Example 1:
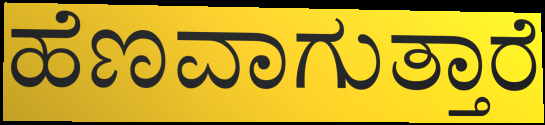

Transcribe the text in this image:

ಹೆಣವಾಗುತ್ತಾರೆ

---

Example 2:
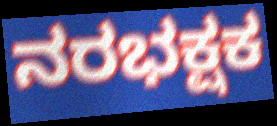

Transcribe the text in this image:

ನರಭಕ್ಷಕ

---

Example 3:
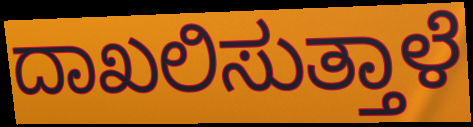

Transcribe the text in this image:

ದಾಖಲಿಸುತ್ತಾಳೆ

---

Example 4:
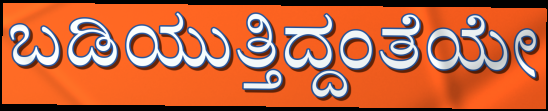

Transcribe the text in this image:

ಬಡಿಯುತ್ತಿದ್ದಂತೆಯೇ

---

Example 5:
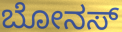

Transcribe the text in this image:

ಬೋನಸ್